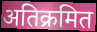
अतिक्रमित